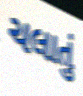
ચલાતું